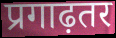
प्रगाढ़तर